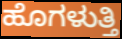
ಹೊಗಳುತ್ತಿ